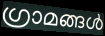
ഗ്രാമങ്ങൾ